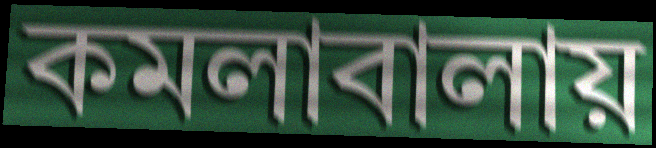
কমলাবালায়